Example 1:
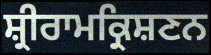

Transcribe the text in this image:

ਸ਼੍ਰੀਰਾਮਕ੍ਰਿਸ਼ਣਨ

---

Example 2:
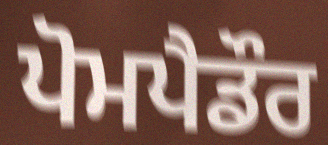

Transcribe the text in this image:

ਪੋਮਪੈਡੌਰ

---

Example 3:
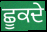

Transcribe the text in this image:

ਛੂਕਦੇ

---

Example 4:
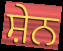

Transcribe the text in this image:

ਸ਼ੇਨ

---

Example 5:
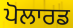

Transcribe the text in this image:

ਪੋਲਾਰਡ